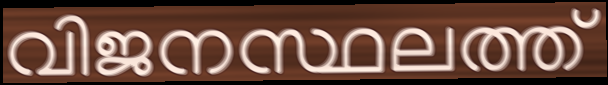
വിജനസ്ഥലത്ത്